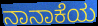
ನಾನಾಕೆಯ